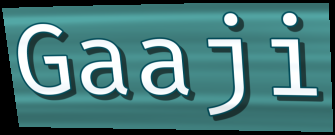
Gaaji